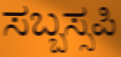
ಸಬ್ಬಸ್ಸಪಿ